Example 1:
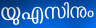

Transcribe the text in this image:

യുഎസിനും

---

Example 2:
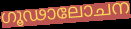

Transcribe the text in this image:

ഗൂഢാലോചന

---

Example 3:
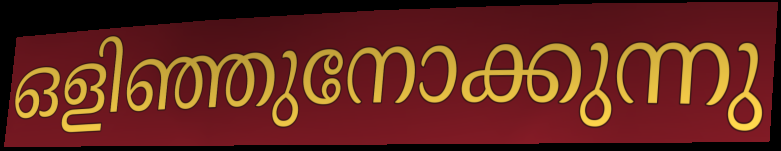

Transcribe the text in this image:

ഒളിഞ്ഞുനോക്കുന്നു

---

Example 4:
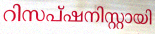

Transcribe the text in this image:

റിസപ്ഷനിസ്റ്റായി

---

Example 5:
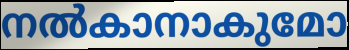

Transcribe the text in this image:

നൽകാനാകുമോ